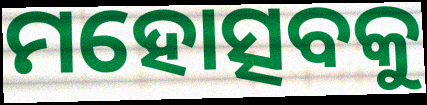
ମହୋତ୍ସବକୁ